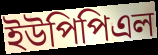
ইউপিপিএল